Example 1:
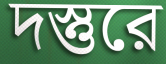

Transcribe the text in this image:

দস্তুরে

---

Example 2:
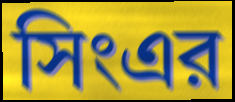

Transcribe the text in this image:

সিংএর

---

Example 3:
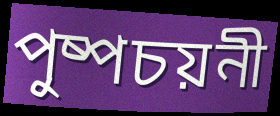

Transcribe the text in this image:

পুষ্পচয়নী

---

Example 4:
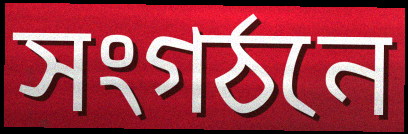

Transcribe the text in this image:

সংগঠনে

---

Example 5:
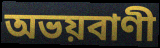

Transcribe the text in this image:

অভয়বাণী